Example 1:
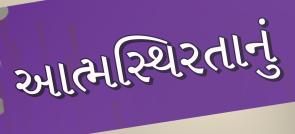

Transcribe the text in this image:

આત્મસ્થિરતાનું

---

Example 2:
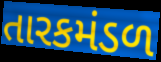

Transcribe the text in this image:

તારકમંડળ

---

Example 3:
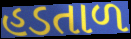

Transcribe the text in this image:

હડતાળ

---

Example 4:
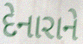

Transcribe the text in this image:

દેનારાને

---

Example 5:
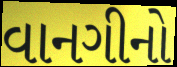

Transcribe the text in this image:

વાનગીનો